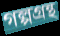
গল্পগ্রন্থ